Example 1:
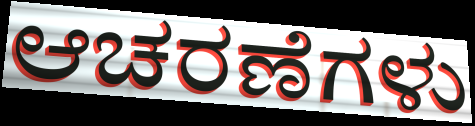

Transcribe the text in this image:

ಆಚರಣೆಗಳು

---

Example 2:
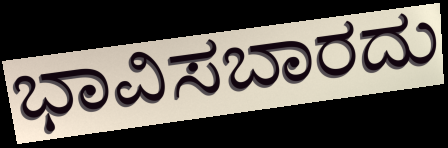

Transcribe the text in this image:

ಭಾವಿಸಬಾರದು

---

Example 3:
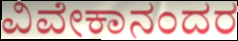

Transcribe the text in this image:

ವಿವೇಕಾನಂದರ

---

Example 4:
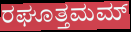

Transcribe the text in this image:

ರಘೂತ್ತಮಮ್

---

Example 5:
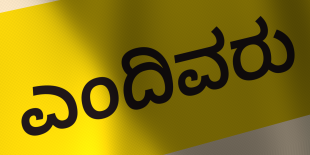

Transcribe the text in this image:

ಎಂದಿವರು